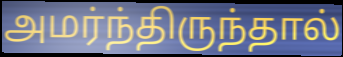
அமர்ந்திருந்தால்